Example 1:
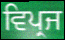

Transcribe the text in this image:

ਵਿਪ੍ਰਜ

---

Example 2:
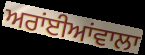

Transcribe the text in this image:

ਅਰਾਂਈਆਂਵਾਲਾ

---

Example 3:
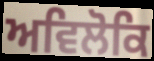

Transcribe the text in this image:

ਅਵਿਲੋਕਿ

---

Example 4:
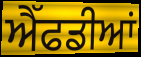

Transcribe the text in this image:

ਐੱਫਡੀਆਂ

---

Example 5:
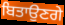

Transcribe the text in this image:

ਬਿਤਾਉਣਗੇ